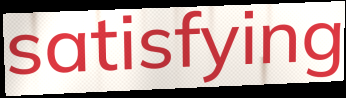
satisfying